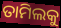
ତାମିଲକୁ